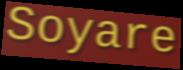
Soyare